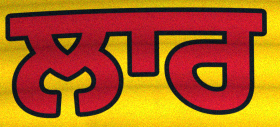
ਲਾਰ